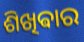
ଶିଖିଵାର